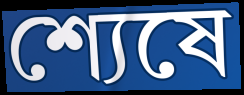
শ্যেষে